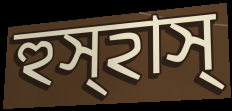
হুস্‌হাস্